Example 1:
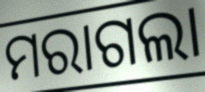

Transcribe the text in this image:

ମରାଗଲା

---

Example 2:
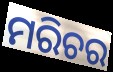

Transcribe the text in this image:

ମରିଚର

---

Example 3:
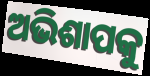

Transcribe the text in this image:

ଅଭିଶାପକୁ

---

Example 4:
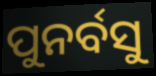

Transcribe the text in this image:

ପୁନର୍ବସୁ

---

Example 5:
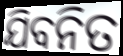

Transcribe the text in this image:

ଯିବନିତ